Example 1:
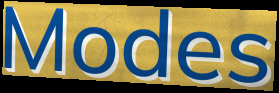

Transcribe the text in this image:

Modes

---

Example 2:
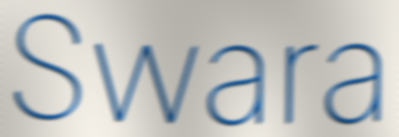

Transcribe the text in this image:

Swara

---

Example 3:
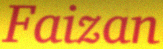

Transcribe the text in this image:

Faizan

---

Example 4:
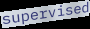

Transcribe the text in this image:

supervised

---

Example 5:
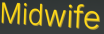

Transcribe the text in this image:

Midwife